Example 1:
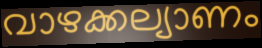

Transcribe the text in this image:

വാഴക്കല്യാണം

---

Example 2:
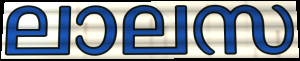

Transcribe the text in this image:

ലാലസ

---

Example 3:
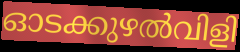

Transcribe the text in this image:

ഓടക്കുഴൽവിളി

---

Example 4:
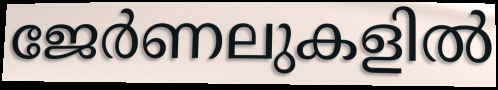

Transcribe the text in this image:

ജേർണലുകളിൽ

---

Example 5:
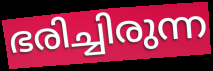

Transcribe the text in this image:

ഭരിച്ചിരുന്ന